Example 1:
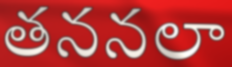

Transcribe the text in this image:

తననలా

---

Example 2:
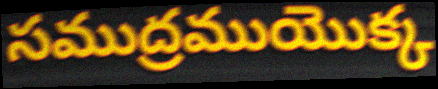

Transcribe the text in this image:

సముద్రముయొక్క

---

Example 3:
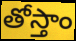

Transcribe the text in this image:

తోస్తాం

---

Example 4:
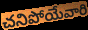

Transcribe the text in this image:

చనిపోయేవారి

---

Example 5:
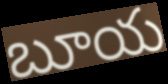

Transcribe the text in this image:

బూయ